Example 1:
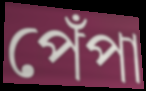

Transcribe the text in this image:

পেঁপা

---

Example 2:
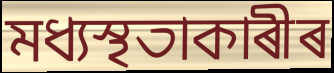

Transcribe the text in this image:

মধ্যস্থতাকাৰীৰ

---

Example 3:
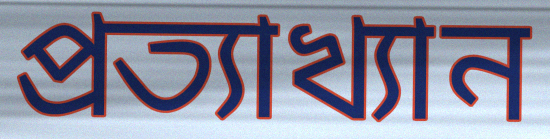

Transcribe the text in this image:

প্ৰত্যাখ্যান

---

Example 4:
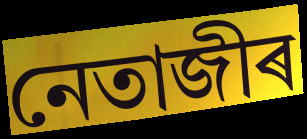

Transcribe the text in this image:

নেতাজীৰ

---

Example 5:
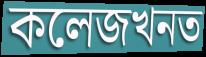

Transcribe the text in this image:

কলেজখনত